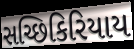
સચ્છિકિરિયાય